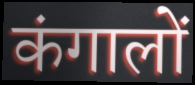
कंगालों